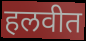
हलवीत